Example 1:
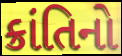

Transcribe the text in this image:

ક્રાંતિનો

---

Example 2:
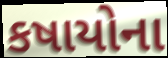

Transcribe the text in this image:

કષાયોના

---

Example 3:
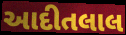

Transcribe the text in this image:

આદીતલાલ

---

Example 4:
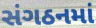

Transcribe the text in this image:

સંગઠનમાં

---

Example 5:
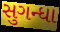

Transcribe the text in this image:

સુગન્ધા